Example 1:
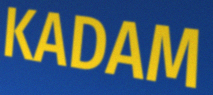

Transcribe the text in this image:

KADAM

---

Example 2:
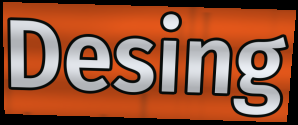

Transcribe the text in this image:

Desing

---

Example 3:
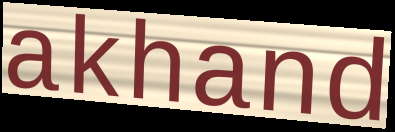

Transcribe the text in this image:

akhand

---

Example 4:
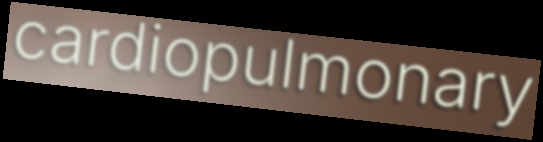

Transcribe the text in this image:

cardiopulmonary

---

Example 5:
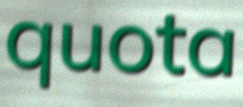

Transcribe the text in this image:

quota